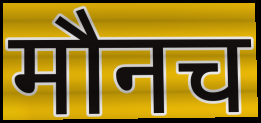
मौनच